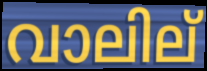
വാലില്